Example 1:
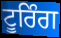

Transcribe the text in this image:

ਟੂਰਿੰਗ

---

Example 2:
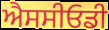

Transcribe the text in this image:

ਐਸਸੀਓਡੀ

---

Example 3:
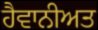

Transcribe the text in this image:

ਹੈਵਾਨੀਅਤ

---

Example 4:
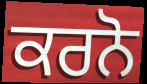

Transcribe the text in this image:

ਕਰਨੋ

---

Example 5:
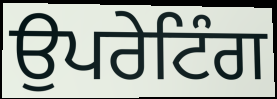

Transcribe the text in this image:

ਉਪਰੇਟਿੰਗ